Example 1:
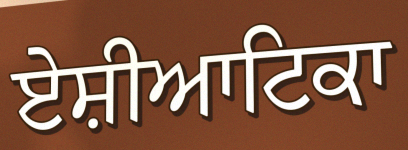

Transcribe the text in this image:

ਏਸ਼ੀਆਟਿਕਾ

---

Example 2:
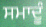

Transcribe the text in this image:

ਸਮਾਦੂੰ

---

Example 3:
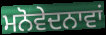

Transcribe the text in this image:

ਮਨੋਵੇਦਨਾਵਾਂ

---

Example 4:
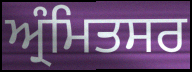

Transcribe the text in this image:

ਅ੍ਰੰਮਿਤਸਰ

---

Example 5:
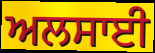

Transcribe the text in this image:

ਅਲਸਾਈ